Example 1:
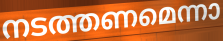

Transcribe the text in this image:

നടത്തണമെന്നാ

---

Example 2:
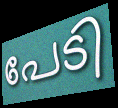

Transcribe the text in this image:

പേടി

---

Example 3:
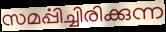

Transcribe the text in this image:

സമൎപ്പിച്ചിരിക്കുന്ന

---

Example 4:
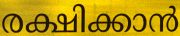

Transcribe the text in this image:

രക്ഷിക്കാൻ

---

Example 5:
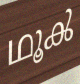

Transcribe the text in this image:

ഥൂൿ